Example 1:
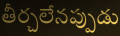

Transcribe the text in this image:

తీర్చలేనప్పుడు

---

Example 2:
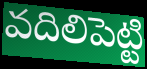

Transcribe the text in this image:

వదిలిపెట్టి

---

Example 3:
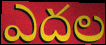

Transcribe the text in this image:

ఎదల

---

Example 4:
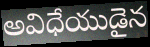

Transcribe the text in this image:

అవిధేయుడైన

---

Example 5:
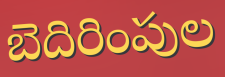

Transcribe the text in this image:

బెదిరింపుల